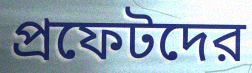
প্রফেটদের